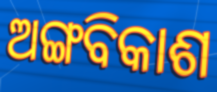
ଅଙ୍ଗବିକାଶ